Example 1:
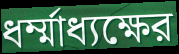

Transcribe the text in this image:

ধর্ম্মাধ্যক্ষের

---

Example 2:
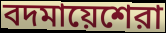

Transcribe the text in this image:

বদমায়েশেরা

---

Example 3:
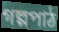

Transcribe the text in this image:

গল্পপাঠ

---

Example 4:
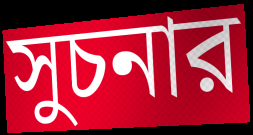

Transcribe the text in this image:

সুচনার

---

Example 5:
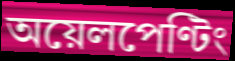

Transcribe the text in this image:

অয়েলপেণ্টিং